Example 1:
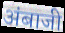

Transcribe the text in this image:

अंबाजी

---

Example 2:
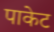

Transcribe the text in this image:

पाकेट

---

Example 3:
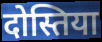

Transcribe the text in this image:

दोस्तिया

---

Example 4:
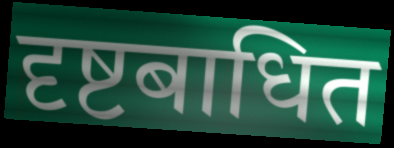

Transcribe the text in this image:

दृष्टबाधित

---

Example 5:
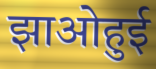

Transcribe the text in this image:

झाओहुई